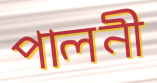
পালনী